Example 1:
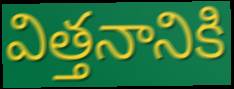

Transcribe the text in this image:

విత్తనానికి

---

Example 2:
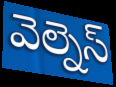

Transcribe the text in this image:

వెల్నెస్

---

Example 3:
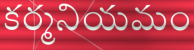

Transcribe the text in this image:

కర్మనియమం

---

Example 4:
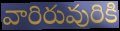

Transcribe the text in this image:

వారిరువురికి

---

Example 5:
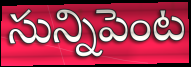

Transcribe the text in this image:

సున్నిపెంట